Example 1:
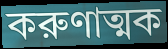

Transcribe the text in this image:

করুণাত্মক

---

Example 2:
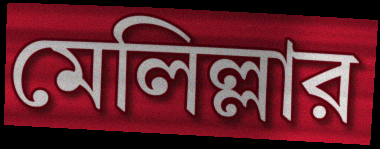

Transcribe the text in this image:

মেলিল্লার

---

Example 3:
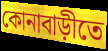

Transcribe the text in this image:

কোনাবাড়ীতে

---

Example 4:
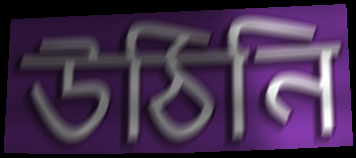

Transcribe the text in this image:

উঠিনি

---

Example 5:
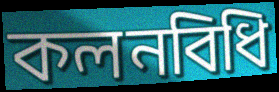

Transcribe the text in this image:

কলনবিধি